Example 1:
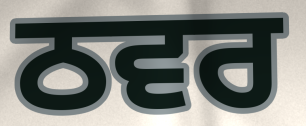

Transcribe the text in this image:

ਠਵਰ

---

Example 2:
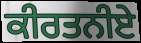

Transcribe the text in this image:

ਕੀਰਤਨੀਏ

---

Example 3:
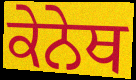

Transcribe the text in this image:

ਕੇਨੇਥ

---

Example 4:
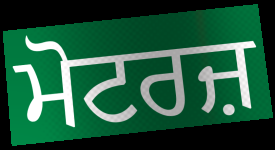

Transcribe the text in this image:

ਮੋਟਰਜ਼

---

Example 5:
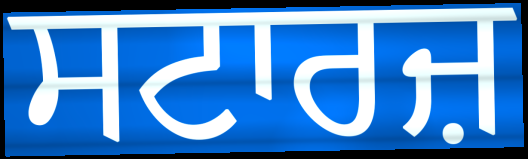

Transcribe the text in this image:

ਸਟਾਰਜ਼